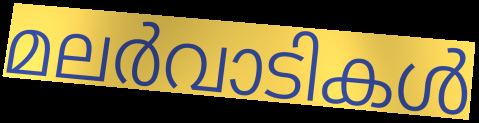
മലർവാടികൾ